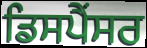
ਡਿਸਪੈਂਸਰ